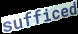
sufficed